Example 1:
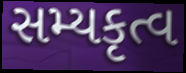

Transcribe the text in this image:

સમ્યકૃત્વ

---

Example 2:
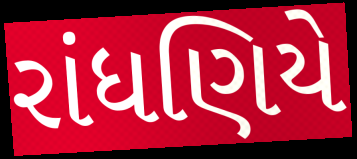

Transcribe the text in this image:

રાંધણિયે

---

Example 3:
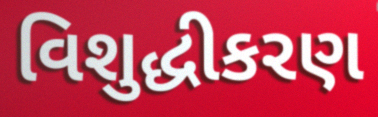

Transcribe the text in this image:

વિશુદ્ધીકરણ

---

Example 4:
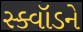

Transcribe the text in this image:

સ્ક્વૉડને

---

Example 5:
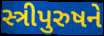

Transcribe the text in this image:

સ્ત્રીપુરુષને